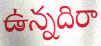
ఉన్నదిరా